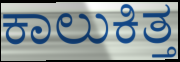
ಕಾಲುಕಿತ್ತ